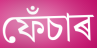
ফেঁচাৰ